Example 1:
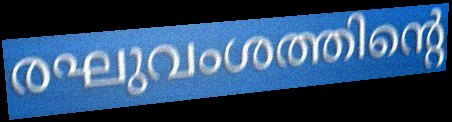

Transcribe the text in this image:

രഘുവംശത്തിന്റെ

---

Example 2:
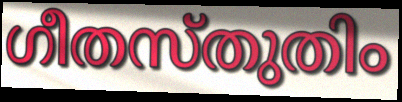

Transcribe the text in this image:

ഗീതസ്തുതിം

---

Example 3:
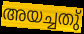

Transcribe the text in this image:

അയച്ചതു്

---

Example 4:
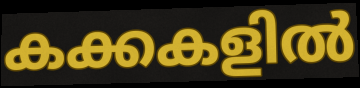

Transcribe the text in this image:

കക്കകളിൽ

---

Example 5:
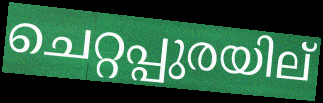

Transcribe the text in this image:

ചെറ്റപ്പുരയില്